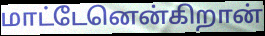
மாட்டேனென்கிறான்